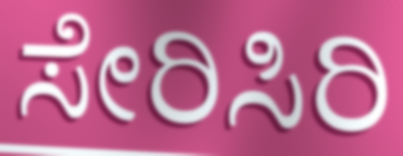
ಸೇರಿಸಿರಿ